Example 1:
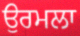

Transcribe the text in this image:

ਉਰਮਲਾ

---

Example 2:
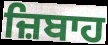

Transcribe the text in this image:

ਜ਼ਿਬਾਹ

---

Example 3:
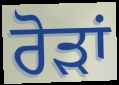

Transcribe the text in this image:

ਰੋੜਾਂ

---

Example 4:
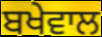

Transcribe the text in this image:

ਬਖੇਵਾਲ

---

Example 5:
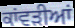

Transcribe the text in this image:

ਕਾਂਵੜੀਆਂ